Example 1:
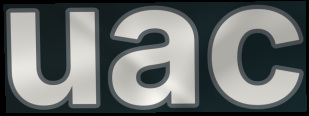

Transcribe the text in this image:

uac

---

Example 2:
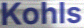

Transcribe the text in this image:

Kohls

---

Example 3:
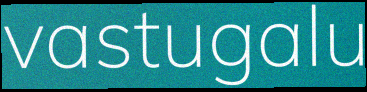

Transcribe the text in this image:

vastugalu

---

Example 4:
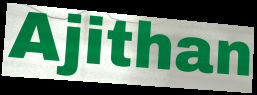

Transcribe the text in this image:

Ajithan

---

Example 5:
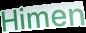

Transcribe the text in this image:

Himen